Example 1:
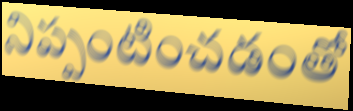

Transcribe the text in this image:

నిప్పంటించడంతో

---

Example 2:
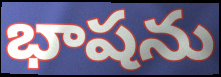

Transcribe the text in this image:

భాషను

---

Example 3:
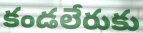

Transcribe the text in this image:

కండలేరుకు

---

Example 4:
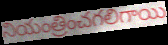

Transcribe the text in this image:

నియంత్రించగలిగాయి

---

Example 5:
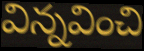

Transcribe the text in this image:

విన్నవించి